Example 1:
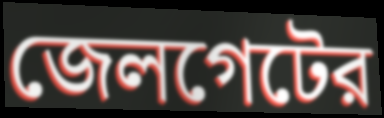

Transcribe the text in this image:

জেলগেটের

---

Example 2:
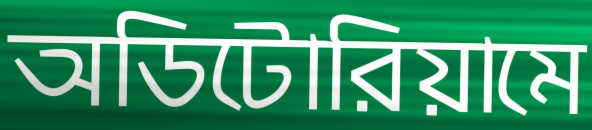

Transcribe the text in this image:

অডিটোরিয়ামে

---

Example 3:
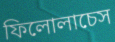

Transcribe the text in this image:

ফিলোলাচেস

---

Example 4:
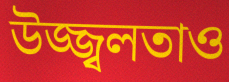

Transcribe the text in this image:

উজ্জ্বলতাও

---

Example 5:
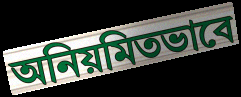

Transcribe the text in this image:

অনিয়মিতভাবে